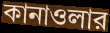
কানাওলার